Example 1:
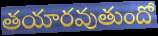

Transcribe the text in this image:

తయారవుతుందో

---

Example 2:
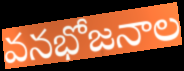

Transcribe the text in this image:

వనభోజనాల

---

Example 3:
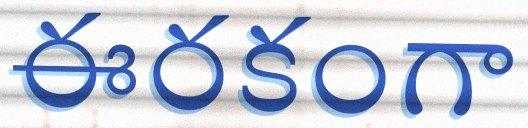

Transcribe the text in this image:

ఈరకంగా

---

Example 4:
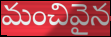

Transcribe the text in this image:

మంచివైన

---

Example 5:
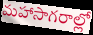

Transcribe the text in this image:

మహాసాగరాల్లో